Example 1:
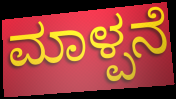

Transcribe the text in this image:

ಮಾಳ್ಪನೆ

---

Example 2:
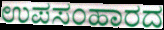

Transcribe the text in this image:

ಉಪಸಂಹಾರದ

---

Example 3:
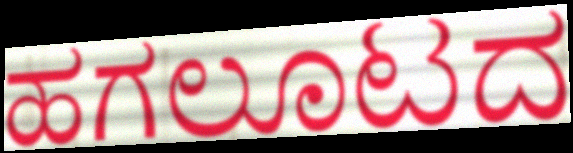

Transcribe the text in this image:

ಹಗಲೂಟದ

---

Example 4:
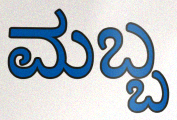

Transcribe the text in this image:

ಮಬ್ಬ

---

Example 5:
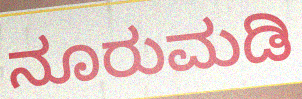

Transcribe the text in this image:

ನೂರುಮಡಿ